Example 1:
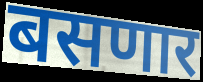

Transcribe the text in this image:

बसणार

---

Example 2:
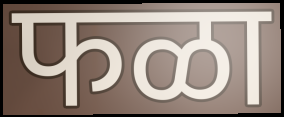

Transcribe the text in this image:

फळा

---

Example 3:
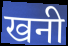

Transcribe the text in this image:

खनी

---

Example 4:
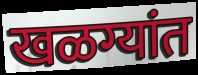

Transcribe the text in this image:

खळग्यांत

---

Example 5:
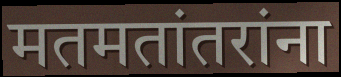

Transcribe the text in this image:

मतमतांतरांना